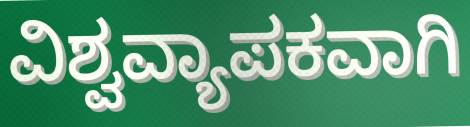
ವಿಶ್ವವ್ಯಾಪಕವಾಗಿ